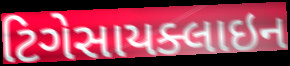
ટિગેસાયક્લાઇન